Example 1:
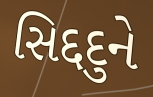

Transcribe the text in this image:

સિદ્દદુને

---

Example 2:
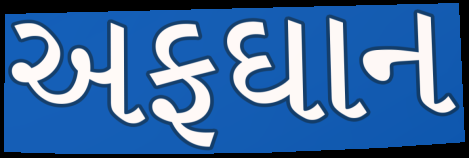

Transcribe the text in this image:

અફઘાન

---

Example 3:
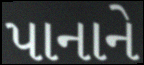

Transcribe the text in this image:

પાનાને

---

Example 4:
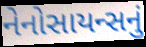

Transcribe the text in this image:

નેનોસાયન્સનું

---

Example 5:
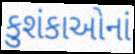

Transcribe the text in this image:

કુશંકાઓનાં